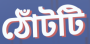
ঠোঁটটি